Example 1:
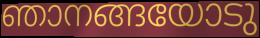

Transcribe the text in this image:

ഞാനങ്ങയോടു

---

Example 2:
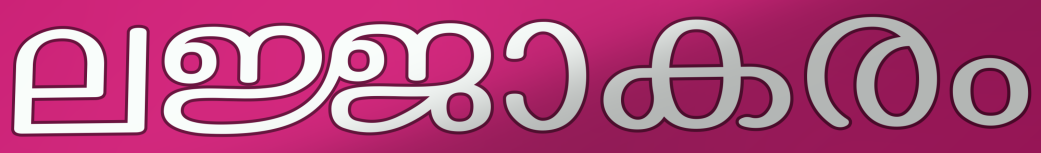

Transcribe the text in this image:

ലജ്ജാകരം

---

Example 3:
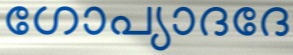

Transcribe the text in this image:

ഗോപ്യാദദേ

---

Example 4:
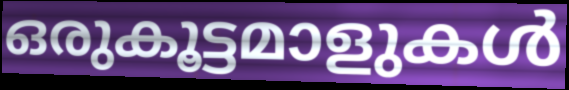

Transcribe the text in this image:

ഒരുകൂട്ടമാളുകൾ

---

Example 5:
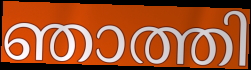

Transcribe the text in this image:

ഞാത്തി